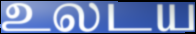
உலடய